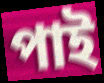
পাই